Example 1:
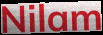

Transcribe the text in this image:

Nilam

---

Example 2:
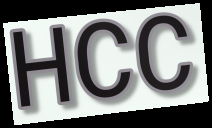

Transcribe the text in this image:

HCC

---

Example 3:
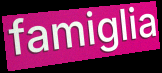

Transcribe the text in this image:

famiglia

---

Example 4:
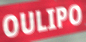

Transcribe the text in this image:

OULIPO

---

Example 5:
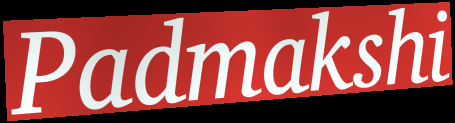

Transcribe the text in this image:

Padmakshi